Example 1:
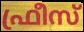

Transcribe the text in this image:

ഫ്രീസ്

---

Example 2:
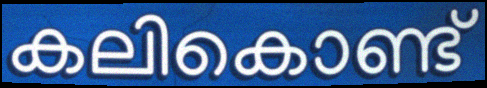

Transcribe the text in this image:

കലികൊണ്ട്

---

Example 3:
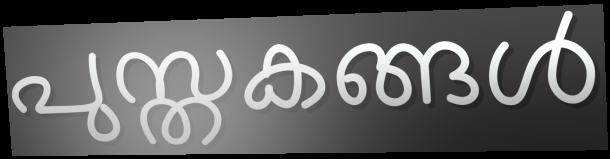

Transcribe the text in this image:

പുസ്തകങ്ങൾ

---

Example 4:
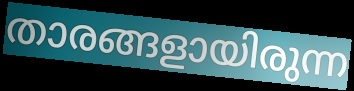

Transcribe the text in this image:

താരങ്ങളായിരുന്ന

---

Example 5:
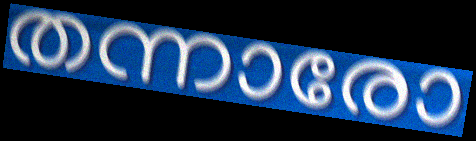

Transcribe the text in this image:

തന്നാരോ